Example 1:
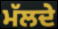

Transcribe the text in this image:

ਮੱਲਦੇ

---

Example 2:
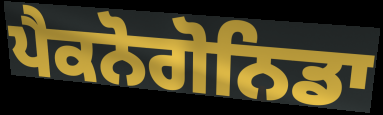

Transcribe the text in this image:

ਪੈਕਨੋਗੋਨਿਡਾ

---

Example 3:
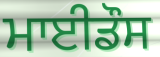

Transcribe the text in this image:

ਮਾਈਡੌਸ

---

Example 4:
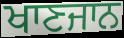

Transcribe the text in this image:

ਖਾਣਜਾਨ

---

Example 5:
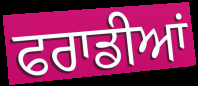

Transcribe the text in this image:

ਫਰਾਡੀਆਂ